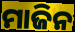
ମାଜିନ